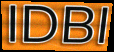
IDBI